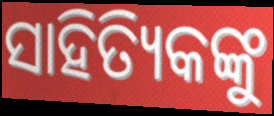
ସାହିତ୍ୟିକଙ୍କୁ